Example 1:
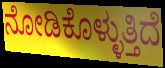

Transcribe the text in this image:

ನೋಡಿಕೊಳ್ಳುತ್ತಿದೆ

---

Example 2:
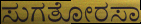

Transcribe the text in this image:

ಸುಗತೋರಸಾ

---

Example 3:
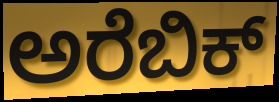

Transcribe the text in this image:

ಅರೆಬಿಕ್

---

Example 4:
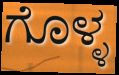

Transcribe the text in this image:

ಗೊಳ್ಳ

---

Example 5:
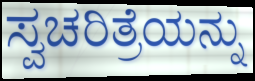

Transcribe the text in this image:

ಸ್ವಚರಿತ್ರೆಯನ್ನು